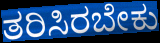
ತರಿಸಿರಬೇಕು